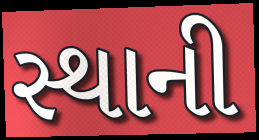
સ્થાની